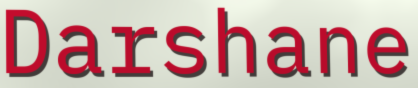
Darshane